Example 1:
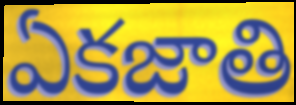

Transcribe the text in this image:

ఏకజాతి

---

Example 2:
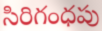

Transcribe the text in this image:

సిరిగంధపు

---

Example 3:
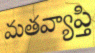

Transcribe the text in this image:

మతవ్యాప్తి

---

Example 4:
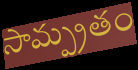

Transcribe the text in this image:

సామ్ప్రతం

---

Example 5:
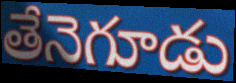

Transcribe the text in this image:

తేనెగూడు